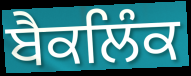
ਬੈਕਲਿੰਕ